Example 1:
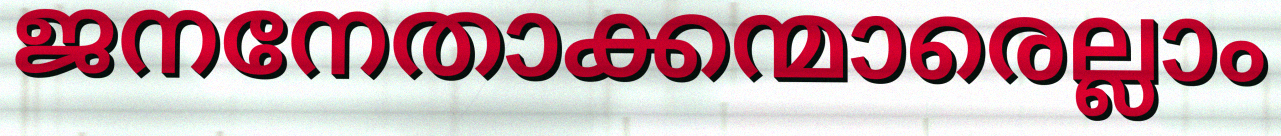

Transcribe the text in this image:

ജനനേതാക്കന്മാരെല്ലാം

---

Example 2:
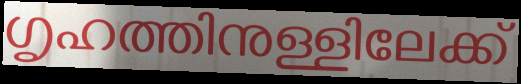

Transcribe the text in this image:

ഗൃഹത്തിനുള്ളിലേക്ക്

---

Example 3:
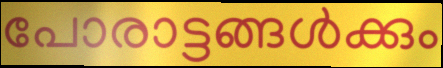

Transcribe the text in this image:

പോരാട്ടങ്ങൾക്കും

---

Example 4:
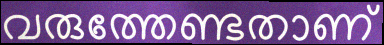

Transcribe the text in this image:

വരുത്തേണ്ടതാണ്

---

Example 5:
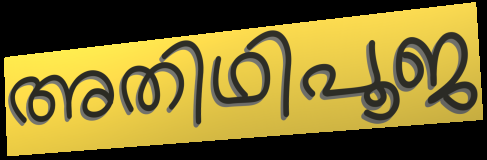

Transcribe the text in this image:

അതിഥിപൂജ